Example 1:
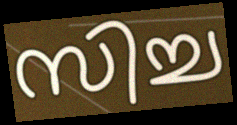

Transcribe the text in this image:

സിച്ച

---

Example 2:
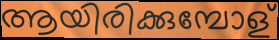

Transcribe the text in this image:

ആയിരിക്കുമ്പോള്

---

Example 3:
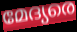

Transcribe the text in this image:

മേദ്യരെ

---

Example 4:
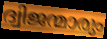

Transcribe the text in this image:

ദ്വിജന്മാരും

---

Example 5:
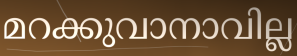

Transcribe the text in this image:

മറക്കുവാനാവില്ല